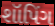
શૉપિંગ